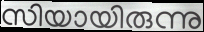
സിയായിരുന്നു